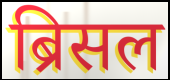
ब्रिसल